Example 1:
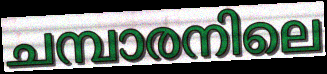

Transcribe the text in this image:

ചമ്പാരനിലെ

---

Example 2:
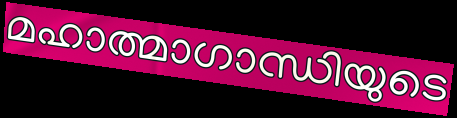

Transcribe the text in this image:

മഹാത്മാഗാന്ധിയുടെ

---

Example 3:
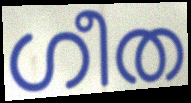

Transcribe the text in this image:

ഗീത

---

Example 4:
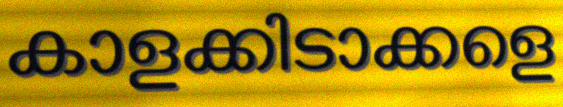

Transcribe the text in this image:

കാളക്കിടാക്കളെ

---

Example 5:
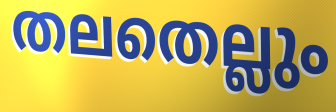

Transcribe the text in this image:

തലതെല്ലും